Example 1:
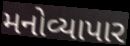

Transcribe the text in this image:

મનોવ્યાપાર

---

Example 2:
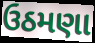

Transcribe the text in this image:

ઉઠમણા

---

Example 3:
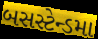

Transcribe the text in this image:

બસસ્ટેન્ડમા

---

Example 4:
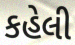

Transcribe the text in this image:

કહેલી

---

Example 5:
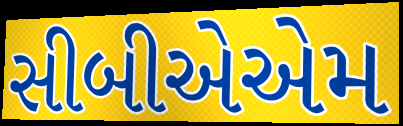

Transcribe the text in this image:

સીબીએએમ